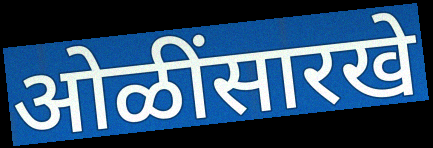
ओळींसारखे